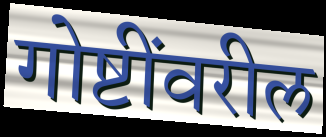
गोष्टींवरील